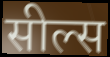
सील्स